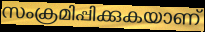
സംക്രമിപ്പിക്കുകയാണ്